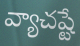
వ్యాచష్టే